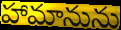
హామానును